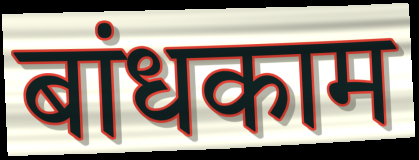
बांधकाम